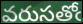
వరుసతోఁ